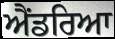
ਐਂਡਰਿਆ